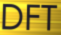
DFT